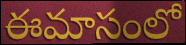
ఈమాసంలో